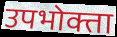
उपभोक्ता